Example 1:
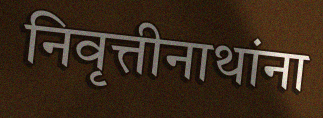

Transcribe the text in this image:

निवृत्तीनाथांना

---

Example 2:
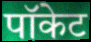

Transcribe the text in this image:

पॉकेट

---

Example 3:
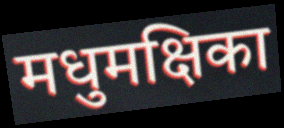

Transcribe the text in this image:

मधुमक्षिका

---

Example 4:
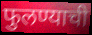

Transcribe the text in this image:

फुलण्याची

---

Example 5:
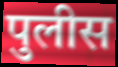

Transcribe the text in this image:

पुलीस